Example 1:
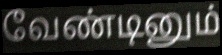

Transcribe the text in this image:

வேண்டினும்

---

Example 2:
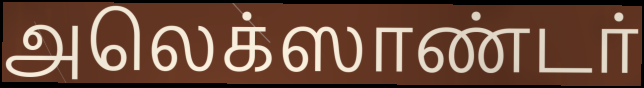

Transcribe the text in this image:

அலெக்ஸாண்டர்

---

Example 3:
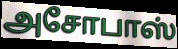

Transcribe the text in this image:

அசோபாஸ்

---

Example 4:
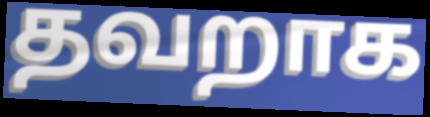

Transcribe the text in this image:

தவறாக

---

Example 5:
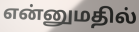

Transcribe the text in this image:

என்னுமதில்